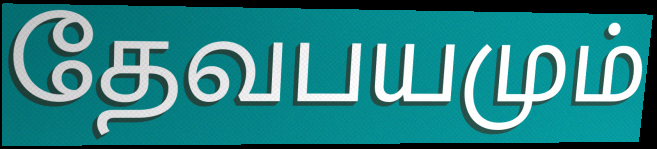
தேவபயமும்